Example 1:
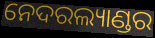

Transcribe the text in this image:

ନେଦରଲ୍ୟାଣ୍ଡର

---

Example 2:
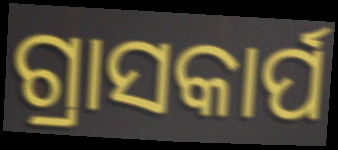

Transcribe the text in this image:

ଗ୍ରାସକାର୍ପ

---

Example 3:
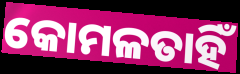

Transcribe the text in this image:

କୋମଳତାହିଁ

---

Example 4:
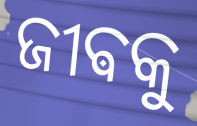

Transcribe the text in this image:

ଜୀଵକୁ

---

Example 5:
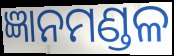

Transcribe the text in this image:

ଜ୍ଞାନମଣ୍ଡଳ